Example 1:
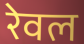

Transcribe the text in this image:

रेवल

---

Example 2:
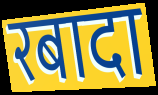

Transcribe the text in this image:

रबादा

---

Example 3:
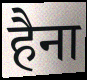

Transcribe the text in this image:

हैना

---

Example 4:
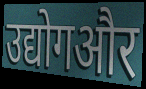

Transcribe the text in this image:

उद्योगऔर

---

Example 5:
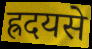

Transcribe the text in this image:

ह्रदयसे